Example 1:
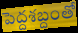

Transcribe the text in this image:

పెద్దశబ్దంతో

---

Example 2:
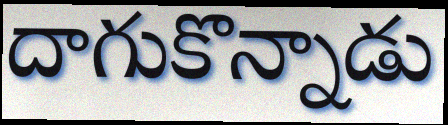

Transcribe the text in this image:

దాగుకొన్నాడు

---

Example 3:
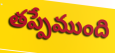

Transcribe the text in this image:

తప్పేముంది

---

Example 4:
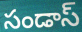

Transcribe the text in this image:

సండాస్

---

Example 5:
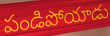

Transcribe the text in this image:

పండిపోయాడు